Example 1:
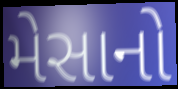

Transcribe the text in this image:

મેસાનો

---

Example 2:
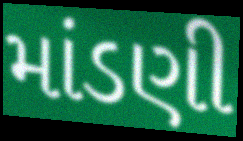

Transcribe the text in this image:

માંડણી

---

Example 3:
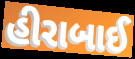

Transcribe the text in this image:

હીરાબાઈ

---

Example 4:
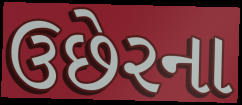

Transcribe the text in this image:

ઉછેરના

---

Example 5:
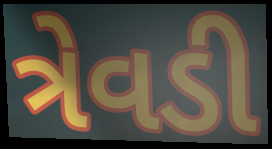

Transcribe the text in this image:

ત્રેવડી